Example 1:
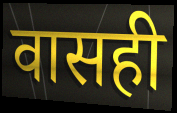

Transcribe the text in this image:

वासही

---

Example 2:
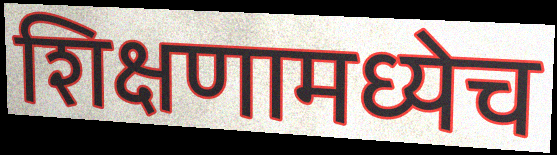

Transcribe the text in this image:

शिक्षणामध्येच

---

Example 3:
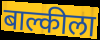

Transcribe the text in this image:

बाल्कीला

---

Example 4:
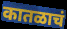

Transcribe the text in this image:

कातळाचं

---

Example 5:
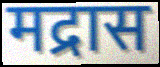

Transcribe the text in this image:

मद्रास